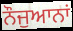
ਨੌਜੁਆਨਾਂ